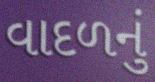
વાદળનું